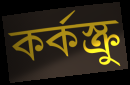
কর্কস্ক্রু